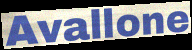
Avallone